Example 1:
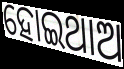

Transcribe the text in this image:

ହୋଇଥାଅ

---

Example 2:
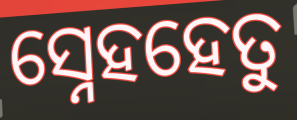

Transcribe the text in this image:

ସ୍ନେହହେତୁ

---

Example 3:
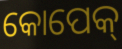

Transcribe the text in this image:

କୋପେକ୍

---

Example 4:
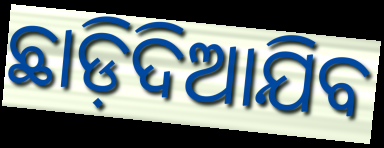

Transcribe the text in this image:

ଛାଡ଼ିଦିଆଯିବ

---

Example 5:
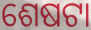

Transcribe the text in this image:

ଶେଷଟା